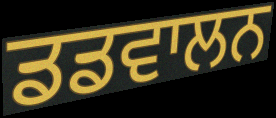
ਡਡਵਾਲਨ